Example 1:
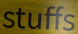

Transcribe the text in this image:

stuffs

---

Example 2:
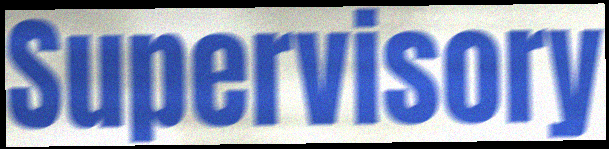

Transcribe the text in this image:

Supervisory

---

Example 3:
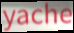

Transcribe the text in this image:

yache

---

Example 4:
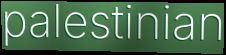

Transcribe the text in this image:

palestinian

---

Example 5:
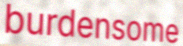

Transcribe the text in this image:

burdensome